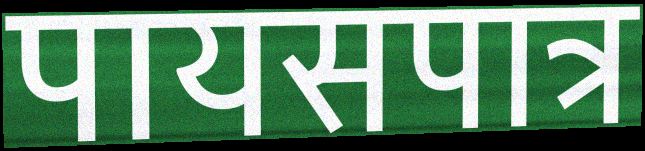
पायसपात्र